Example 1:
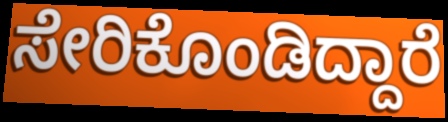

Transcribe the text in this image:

ಸೇರಿಕೊಂಡಿದ್ದಾರೆ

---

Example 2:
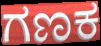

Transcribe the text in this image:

ಗಣಕ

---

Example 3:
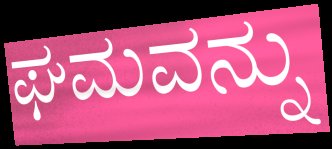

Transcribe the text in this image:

ಘಮವನ್ನು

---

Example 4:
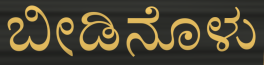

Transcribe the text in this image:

ಬೀಡಿನೊಳು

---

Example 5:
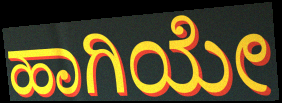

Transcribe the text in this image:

ಹಾಗಿಯೇ